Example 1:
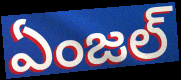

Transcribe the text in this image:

ఏంజల్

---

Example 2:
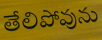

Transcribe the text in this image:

తేలిపోవును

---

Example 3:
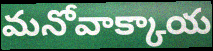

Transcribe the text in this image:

మనోవాక్కాయ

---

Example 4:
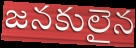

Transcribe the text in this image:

జనకులైన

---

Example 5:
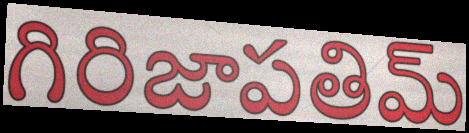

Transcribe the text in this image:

గిరిజాపతిమ్